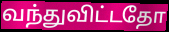
வந்துவிட்டதோ